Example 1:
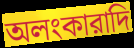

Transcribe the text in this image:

অলংকারাদি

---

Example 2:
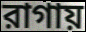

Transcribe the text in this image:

রাগায়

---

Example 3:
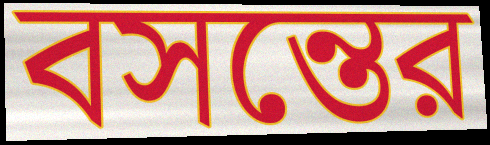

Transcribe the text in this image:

বসন্তের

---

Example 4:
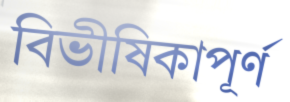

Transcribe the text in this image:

বিভীষিকাপূর্ণ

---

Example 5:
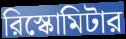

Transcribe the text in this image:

রিস্কোমিটার